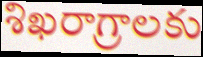
శిఖరాగ్రాలకు